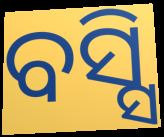
ବସ୍ସି